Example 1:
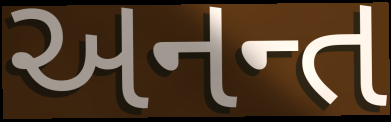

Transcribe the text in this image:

અનન્ત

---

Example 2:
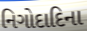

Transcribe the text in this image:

નિગોદાદિના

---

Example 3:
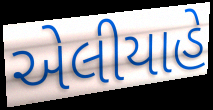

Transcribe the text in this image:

એલીયાહે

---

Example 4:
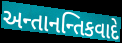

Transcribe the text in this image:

અન્તાનન્તિકવાદે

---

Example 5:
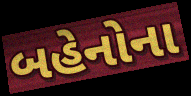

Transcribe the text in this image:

બહેનોના